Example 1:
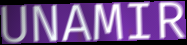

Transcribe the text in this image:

UNAMIR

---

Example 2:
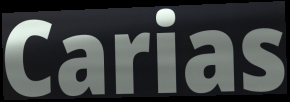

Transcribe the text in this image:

Carias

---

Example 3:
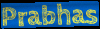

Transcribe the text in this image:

Prabhas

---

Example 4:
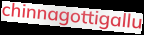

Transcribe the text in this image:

chinnagottigallu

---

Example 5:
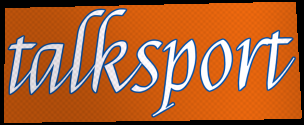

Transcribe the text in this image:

talksport